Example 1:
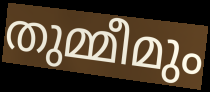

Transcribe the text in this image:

തുമ്മീമും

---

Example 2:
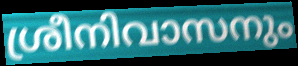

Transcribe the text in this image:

ശ്രീനിവാസനും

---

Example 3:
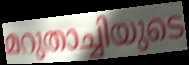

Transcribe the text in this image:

മറുതാച്ചിയുടെ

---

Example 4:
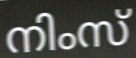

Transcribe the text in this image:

നിംസ്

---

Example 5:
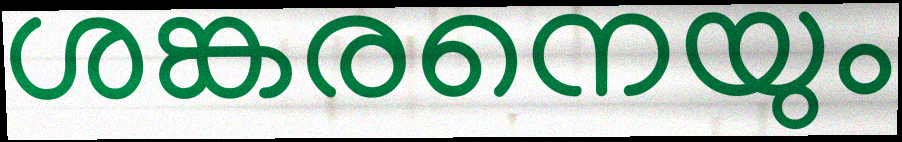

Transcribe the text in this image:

ശങ്കരനെയും